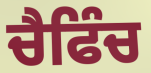
ਚੈਫਿੰਚ